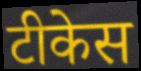
टीकेस